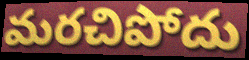
మరచిపోదు